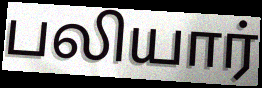
பலியார்